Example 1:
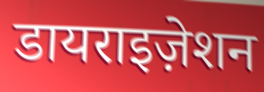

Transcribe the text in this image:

डायराइज़ेशन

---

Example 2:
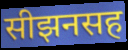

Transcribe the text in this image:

सीझनसह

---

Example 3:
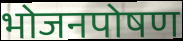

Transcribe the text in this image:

भोजनपोषण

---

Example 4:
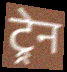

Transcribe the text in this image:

ट्र्रेन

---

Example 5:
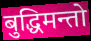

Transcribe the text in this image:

बुद्धिमन्तो